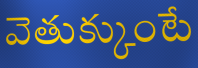
వెతుక్కుంటే